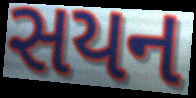
સયન